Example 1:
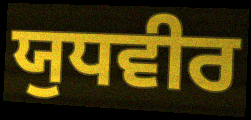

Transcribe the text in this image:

ਯੁਧਵੀਰ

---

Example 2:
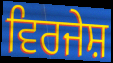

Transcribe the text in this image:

ਵਿਰਜੇਸ਼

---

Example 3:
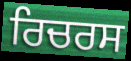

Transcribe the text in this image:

ਰਿਚਰਸ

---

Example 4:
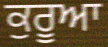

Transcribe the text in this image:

ਕੁਰੂਆ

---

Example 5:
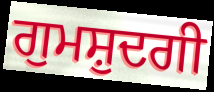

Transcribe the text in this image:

ਗੁਮਸ਼ੁਦਗੀ